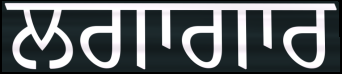
ਲਗਾਗਾਰ